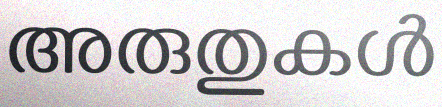
അരുതുകൾ